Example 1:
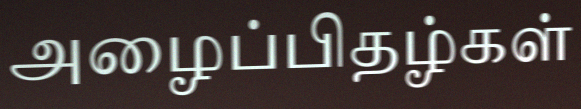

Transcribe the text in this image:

அழைப்பிதழ்கள்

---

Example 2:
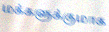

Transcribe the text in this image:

மக்களுக்குமாக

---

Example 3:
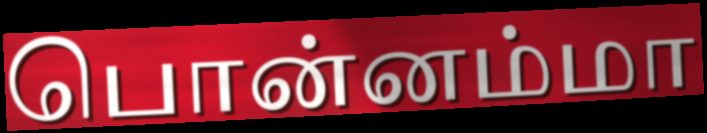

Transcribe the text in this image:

பொன்னம்மா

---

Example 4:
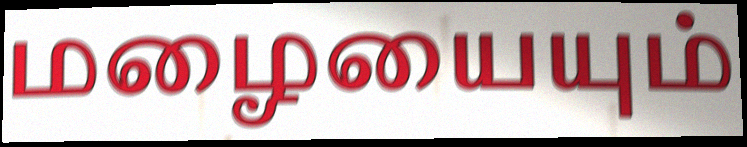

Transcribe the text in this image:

மழையையும்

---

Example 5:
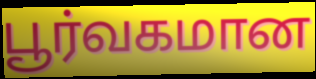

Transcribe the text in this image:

பூர்வகமான